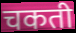
चकती